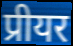
प्रीयर